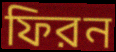
ফিরন